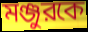
মঞ্জুরকে